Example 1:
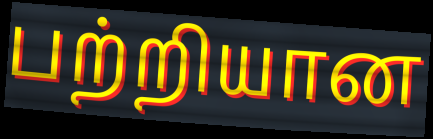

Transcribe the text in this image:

பற்றியான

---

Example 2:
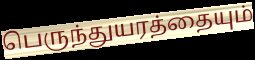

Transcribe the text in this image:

பெருந்துயரத்தையும்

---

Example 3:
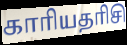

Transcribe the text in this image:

காரியதரிசி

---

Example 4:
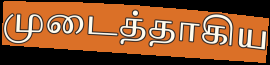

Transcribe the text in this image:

முடைத்தாகிய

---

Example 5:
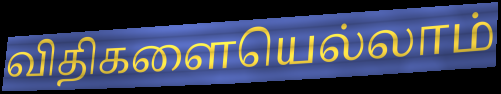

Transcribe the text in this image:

விதிகளையெல்லாம்